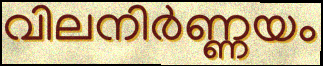
വിലനിർണ്ണയം